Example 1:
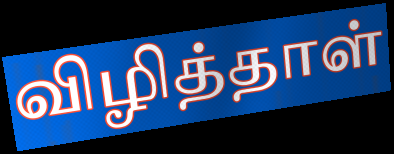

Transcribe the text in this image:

விழித்தாள்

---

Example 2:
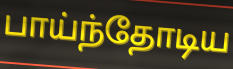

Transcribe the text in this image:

பாய்ந்தோடிய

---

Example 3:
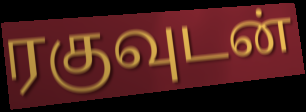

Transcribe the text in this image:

ரகுவுடன்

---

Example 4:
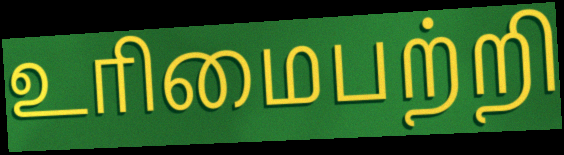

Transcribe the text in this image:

உரிமைபற்றி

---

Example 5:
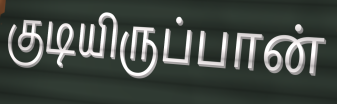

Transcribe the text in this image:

குடியிருப்பான்